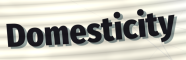
Domesticity